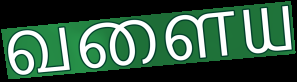
வளைய